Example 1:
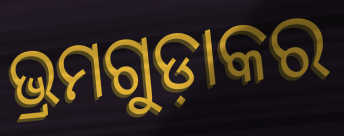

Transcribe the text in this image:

ଭ୍ରମଗୁଡ଼ାକର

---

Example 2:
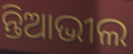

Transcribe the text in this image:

ନ୍ତିଆଭୀଲ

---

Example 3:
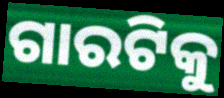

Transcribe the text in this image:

ଗାରଟିକୁ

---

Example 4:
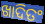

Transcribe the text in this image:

ଖାଦିତଂ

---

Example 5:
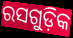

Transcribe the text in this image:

ରସଗୁଡ଼ିକ